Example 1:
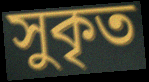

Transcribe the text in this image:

সুকৃত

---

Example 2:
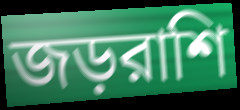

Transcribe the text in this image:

জড়রাশি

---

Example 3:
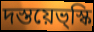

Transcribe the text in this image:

দস্তয়েভ্স্কি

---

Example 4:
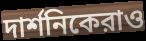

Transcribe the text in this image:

দার্শনিকেরাও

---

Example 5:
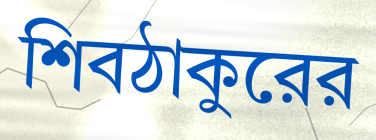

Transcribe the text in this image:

শিবঠাকুরের